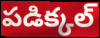
పడిక్కల్